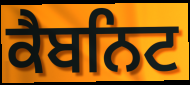
ਕੈਬਨਿਟ